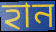
হান